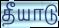
தீயாடு